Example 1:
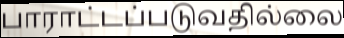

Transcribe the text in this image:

பாராட்டப்படுவதில்லை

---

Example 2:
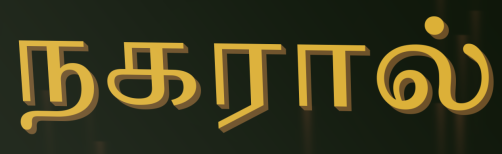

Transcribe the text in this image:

நகரால்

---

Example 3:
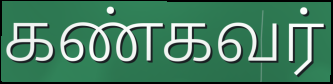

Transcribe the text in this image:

கண்கவர்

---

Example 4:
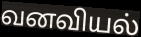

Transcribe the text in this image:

வனவியல்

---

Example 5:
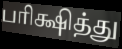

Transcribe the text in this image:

பரிக்ஷித்து